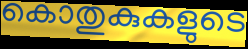
കൊതുകുകളുടെ